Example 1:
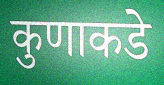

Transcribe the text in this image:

कुणाकडे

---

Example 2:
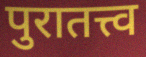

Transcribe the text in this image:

पुरातत्त्व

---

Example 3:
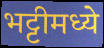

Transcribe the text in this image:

भट्टीमध्ये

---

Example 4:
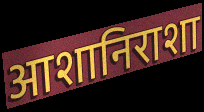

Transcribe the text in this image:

आशानिराशा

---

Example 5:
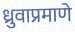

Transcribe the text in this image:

ध्रुवाप्रमाणे